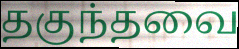
தகுந்தவை